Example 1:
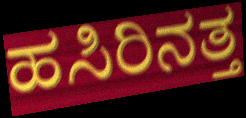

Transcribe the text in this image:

ಹಸಿರಿನತ್ತ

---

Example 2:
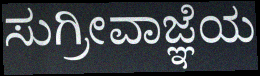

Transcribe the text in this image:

ಸುಗ್ರೀವಾಜ್ಞೆಯ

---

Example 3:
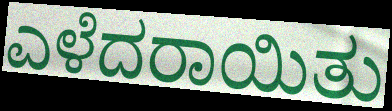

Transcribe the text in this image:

ಎಳೆದರಾಯಿತು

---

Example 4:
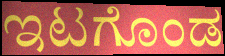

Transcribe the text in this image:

ಇಟಗೊಂಡ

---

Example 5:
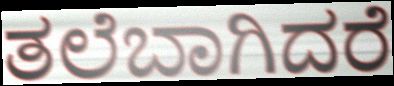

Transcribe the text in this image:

ತಲೆಬಾಗಿದರೆ